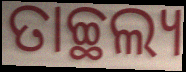
ତାଚ୍ଛଲ୍ଯ